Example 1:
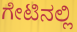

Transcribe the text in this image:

ಗೇಟಿನಲ್ಲಿ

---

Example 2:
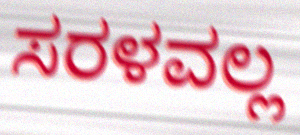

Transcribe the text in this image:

ಸರಳವಲ್ಲ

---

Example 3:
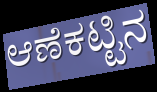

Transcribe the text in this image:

ಆಣೆಕಟ್ಟಿನ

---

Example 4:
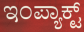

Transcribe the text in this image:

ಇಂಪ್ಯಾಕ್ಟ್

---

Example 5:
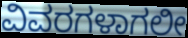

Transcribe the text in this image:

ವಿವರಗಳಾಗಲೀ